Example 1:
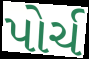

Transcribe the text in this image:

પોર્ચ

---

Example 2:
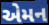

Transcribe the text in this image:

એમન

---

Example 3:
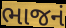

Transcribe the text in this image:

ભાજનં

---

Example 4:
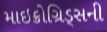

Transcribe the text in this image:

માઇક્રોગ્રિડ્સની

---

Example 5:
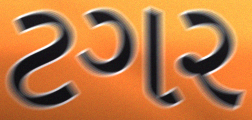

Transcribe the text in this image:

ટગર